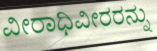
ವೀರಾಧಿವೀರರನ್ನು